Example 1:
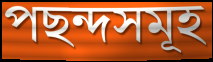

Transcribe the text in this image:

পছন্দসমূহ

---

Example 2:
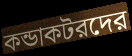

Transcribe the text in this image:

কন্ডাকটরদের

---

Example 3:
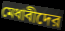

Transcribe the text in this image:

মেধাবীদের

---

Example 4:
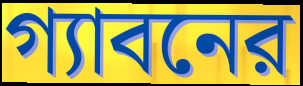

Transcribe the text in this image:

গ্যাবনের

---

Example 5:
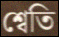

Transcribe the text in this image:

শ্বেতি